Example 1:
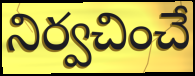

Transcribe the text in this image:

నిర్వచించే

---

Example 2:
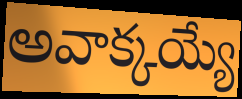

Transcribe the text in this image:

అవాక్కయ్యే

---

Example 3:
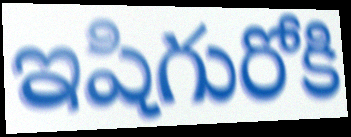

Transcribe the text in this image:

ఇషిగురోకి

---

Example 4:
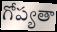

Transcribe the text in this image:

గోప్యతా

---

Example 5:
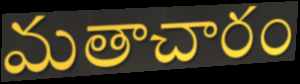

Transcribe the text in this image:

మతాచారం